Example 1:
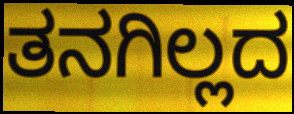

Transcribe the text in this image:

ತನಗಿಲ್ಲದ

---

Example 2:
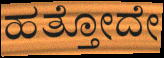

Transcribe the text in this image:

ಹತ್ತೋದೇ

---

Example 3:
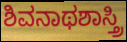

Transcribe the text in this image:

ಶಿವನಾಥಶಾಸ್ತ್ರಿ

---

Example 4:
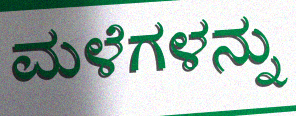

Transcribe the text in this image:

ಮಳೆಗಳನ್ನು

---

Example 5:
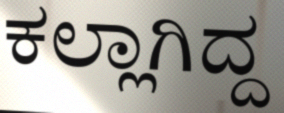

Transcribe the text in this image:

ಕಲ್ಲಾಗಿದ್ದ